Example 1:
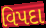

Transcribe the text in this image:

વિપદા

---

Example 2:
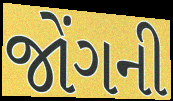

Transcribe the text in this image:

જોંગની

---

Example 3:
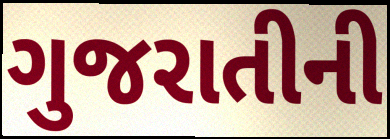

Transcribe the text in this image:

ગુજરાતીની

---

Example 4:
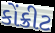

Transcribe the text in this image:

કોંક્રીટ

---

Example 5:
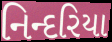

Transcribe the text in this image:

નિન્દરિયા